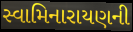
સ્વામિનારાયણની